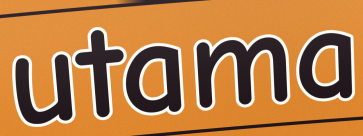
utama